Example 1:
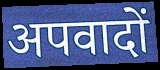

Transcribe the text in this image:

अपवादों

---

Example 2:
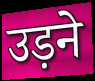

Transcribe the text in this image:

उड़ने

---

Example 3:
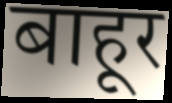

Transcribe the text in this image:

बाहूर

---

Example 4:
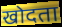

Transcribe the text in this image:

खोदता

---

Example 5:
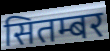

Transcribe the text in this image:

सितम्‍बर